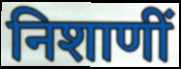
निशाणीं